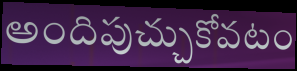
అందిపుచ్చుకోవటం